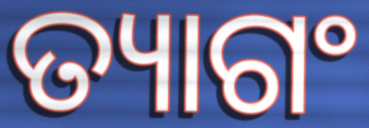
ତ୍ୟାଗଂ